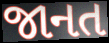
જાનત